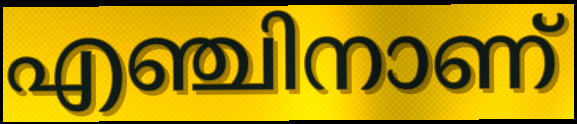
എഞ്ചിനാണ്